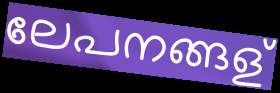
ലേപനങ്ങള്